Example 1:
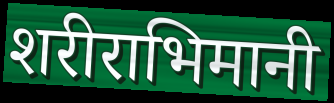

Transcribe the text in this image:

शरीराभिमानी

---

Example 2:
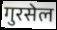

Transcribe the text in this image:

गुरसेल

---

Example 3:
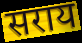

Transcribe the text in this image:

सराय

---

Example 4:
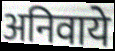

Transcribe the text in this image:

अनिवाये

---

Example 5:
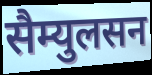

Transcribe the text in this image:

सैम्युलसन